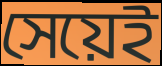
সেয়েই